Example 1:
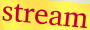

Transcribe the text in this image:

stream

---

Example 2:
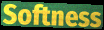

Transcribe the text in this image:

Softness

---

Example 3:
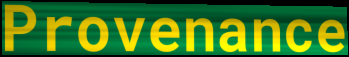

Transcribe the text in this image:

Provenance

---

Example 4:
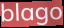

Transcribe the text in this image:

blago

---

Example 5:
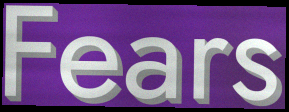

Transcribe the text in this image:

Fears